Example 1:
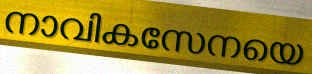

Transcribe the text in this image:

നാവികസേനയെ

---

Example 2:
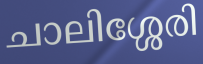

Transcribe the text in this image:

ചാലിശ്ശേരി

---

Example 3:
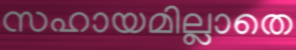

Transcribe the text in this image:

സഹായമില്ലാതെ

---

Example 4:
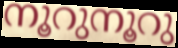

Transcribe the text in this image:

നൂറുനൂറു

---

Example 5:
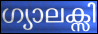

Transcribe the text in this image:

ഗ്യാലക്സി